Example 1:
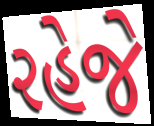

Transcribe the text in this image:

રહેજે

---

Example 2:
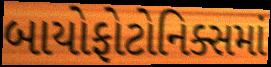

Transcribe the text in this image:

બાયોફોટોનિક્સમાં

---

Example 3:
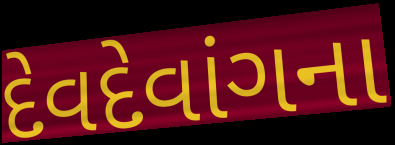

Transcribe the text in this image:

દેવદેવાંગના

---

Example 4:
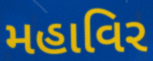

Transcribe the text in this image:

મહાવિર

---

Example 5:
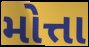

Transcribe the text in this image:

મોત્તા